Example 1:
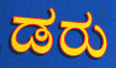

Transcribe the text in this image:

ಡರು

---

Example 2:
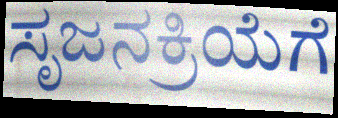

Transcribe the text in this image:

ಸೃಜನಕ್ರಿಯೆಗೆ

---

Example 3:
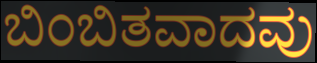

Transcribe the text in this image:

ಬಿಂಬಿತವಾದವು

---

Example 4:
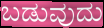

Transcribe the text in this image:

ಬಡುವುದು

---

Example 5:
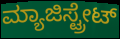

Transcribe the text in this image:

ಮ್ಯಾಜಿಸ್ಟ್ರೇಟ್